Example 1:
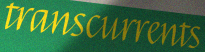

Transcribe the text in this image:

transcurrents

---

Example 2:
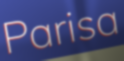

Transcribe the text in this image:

Parisa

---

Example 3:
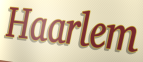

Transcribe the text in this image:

Haarlem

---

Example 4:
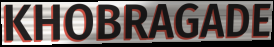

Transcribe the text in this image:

KHOBRAGADE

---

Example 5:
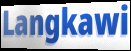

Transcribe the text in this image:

Langkawi